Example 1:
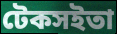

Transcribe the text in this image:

টেকসইতা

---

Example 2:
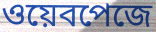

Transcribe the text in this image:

ওয়েবপেজে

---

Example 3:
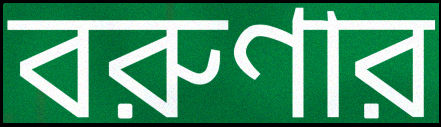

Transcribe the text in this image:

বরুণার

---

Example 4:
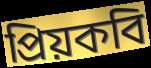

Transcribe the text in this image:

প্রিয়কবি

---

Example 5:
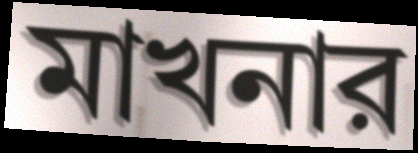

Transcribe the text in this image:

মাখনার